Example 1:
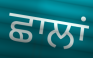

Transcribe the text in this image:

ਛਾਲਾਂ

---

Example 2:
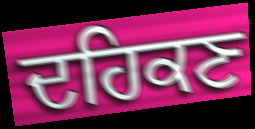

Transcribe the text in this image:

ਦਹਿਕਣ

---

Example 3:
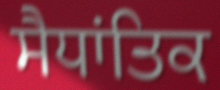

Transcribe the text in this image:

ਸੈਧਾਂਤਿਕ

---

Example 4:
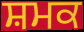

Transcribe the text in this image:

ਸ਼ਮਕ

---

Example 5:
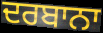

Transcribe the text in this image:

ਦਰਬਾਨਾ